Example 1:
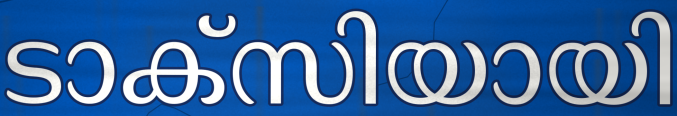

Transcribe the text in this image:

ടാക്സിയായി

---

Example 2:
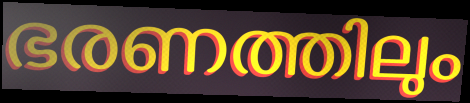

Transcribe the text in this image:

ഭരണത്തിലും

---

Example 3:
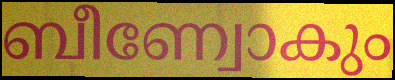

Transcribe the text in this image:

ബീണ്വോകും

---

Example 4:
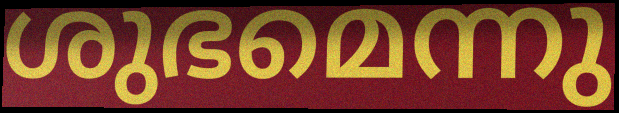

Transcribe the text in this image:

ശുഭമെന്നു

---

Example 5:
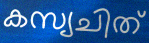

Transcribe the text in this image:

കസ്യചിത്